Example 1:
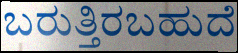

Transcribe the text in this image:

ಬರುತ್ತಿರಬಹುದೆ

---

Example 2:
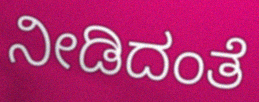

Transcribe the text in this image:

ನೀಡಿದಂತೆ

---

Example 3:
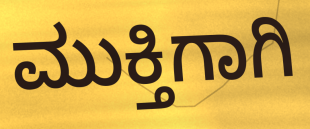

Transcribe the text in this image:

ಮುಕ್ತಿಗಾಗಿ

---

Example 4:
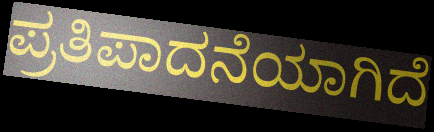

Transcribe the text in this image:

ಪ್ರತಿಪಾದನೆಯಾಗಿದೆ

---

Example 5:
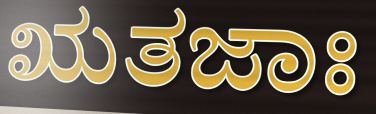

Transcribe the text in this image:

ಋತಜಾಃ